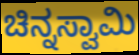
ಚಿನ್ನಸ್ವಾಮಿ